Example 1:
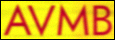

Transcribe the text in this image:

AVMB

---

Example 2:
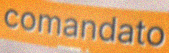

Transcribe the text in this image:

comandato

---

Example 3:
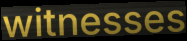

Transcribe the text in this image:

witnesses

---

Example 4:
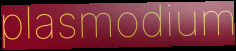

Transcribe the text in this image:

plasmodium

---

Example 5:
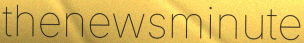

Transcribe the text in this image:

thenewsminute